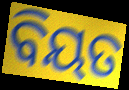
ବିୟତ